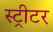
स्ट्रीटर